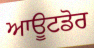
ਆਊਟਡੋਰ